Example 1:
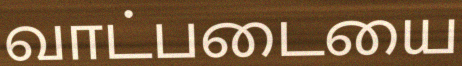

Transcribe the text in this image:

வாட்படையை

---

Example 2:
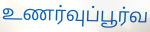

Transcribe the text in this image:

உணர்வுப்பூர்வ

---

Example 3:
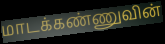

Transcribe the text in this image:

மாடக்கண்ணுவின்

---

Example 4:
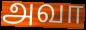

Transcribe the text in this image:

அவா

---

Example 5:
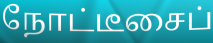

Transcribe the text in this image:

நோட்டீசைப்